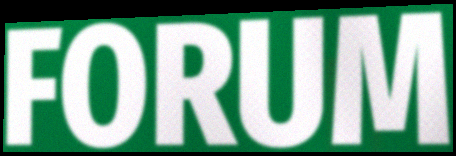
FORUM